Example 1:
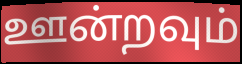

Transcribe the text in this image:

ஊன்றவும்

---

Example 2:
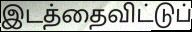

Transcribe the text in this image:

இடத்தைவிட்டுப்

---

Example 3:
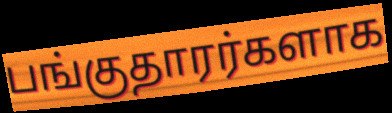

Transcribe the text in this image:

பங்குதாரர்களாக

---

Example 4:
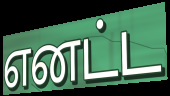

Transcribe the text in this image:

எனட்ட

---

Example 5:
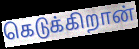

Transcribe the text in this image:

கெடுக்கிறான்